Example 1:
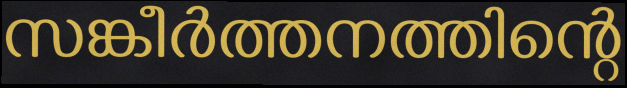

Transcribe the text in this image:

സങ്കീർത്തനത്തിന്റെ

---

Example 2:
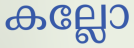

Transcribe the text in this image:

കല്ലോ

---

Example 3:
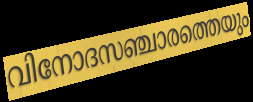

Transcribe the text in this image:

വിനോദസഞ്ചാരത്തെയും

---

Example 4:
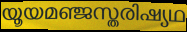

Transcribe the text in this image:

യൂയമഞ്ജസ്തരിഷ്യഥ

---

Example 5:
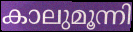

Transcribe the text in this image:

കാലുമൂന്നി